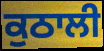
ਕੁਠਾਲੀ